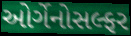
ઓર્ગેનોસલ્ફર